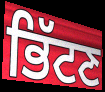
ਭਿੱਟਣ